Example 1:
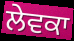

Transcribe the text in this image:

ਲੇਵਕਾ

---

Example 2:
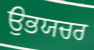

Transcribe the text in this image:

ਉਭਯਚਰ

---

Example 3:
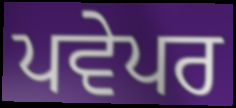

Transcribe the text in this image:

ਪਵੇਪਰ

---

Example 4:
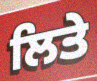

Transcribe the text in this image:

ਲਿਤੇ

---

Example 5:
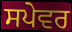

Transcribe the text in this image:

ਸਪੇਵਰ